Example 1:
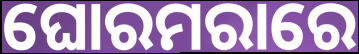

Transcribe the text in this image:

ଘୋରମରାରେ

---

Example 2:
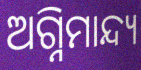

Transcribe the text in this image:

ଅଗ୍ନିମାନ୍ଦ୍ୟ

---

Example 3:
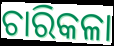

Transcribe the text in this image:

ଚାରିକଳା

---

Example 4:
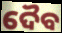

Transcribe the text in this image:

ଦୈବ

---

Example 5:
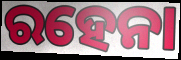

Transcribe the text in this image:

ରହେନା